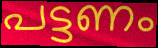
പട്ടണം